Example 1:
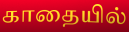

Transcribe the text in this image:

காதையில்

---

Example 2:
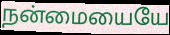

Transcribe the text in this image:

நன்மையையே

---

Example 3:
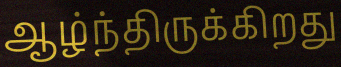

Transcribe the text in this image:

ஆழ்ந்திருக்கிறது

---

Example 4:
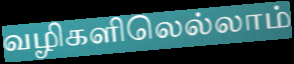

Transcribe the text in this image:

வழிகளிலெல்லாம்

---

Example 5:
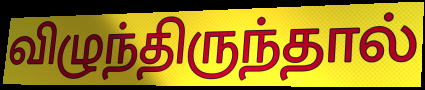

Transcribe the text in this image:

விழுந்திருந்தால்